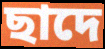
ছাদে